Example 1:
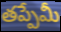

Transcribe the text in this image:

తప్పేమీ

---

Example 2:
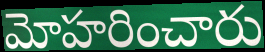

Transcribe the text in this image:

మోహరించారు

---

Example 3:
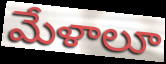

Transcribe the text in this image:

మేళాలూ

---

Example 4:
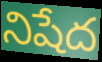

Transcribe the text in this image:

నిషేద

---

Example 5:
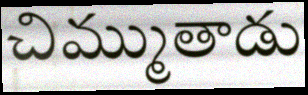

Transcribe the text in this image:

చిమ్ముతాడు